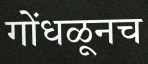
गोंधळूनच